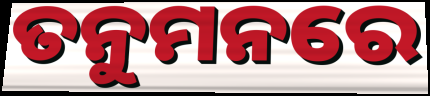
ତନୁମନରେ